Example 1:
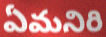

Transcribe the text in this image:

ఏమనిరి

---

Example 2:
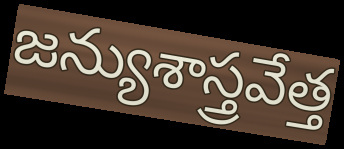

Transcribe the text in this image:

జన్యుశాస్త్రవేత్త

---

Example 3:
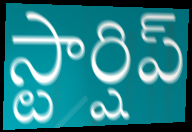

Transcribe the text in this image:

స్టార్షిప్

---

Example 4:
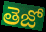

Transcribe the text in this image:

తెజో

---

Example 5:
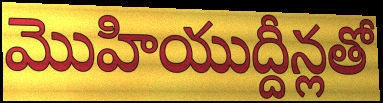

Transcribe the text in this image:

మొహియుద్దీన్లతో